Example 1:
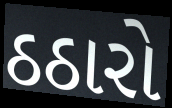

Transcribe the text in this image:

ઠઠારો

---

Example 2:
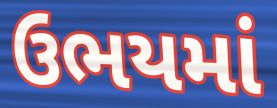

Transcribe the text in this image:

ઉભયમાં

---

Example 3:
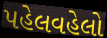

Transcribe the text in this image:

પહેલવહેલો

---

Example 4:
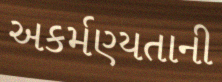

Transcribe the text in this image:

અકર્મણ્યતાની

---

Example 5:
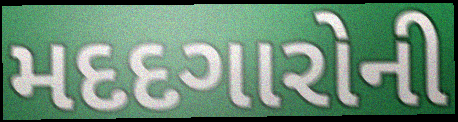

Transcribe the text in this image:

મદદગારોની